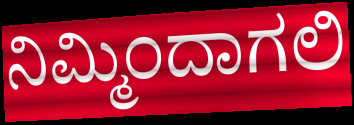
ನಿಮ್ಮಿಂದಾಗಲಿ